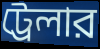
ট্রেলার